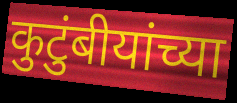
कुटुंबीयांच्या